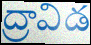
ద్రావిడ